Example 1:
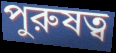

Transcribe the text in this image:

পুরুষত্ব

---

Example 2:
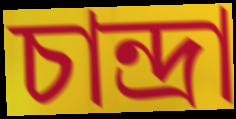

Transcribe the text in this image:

চান্দ্রা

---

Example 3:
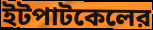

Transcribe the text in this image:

ইটপাটকেলের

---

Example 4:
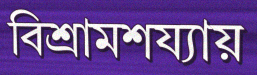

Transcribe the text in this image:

বিশ্রামশয্যায়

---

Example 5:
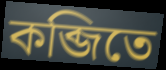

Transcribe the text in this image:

কব্জিতে